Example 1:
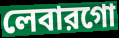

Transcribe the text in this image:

লেবারগো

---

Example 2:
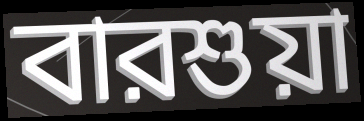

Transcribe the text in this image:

বারশুয়া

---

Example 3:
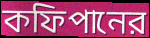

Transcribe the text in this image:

কফিপানের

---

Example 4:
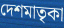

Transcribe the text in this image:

দেশমাতৃকা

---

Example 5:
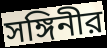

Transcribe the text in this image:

সঙ্গিনীর